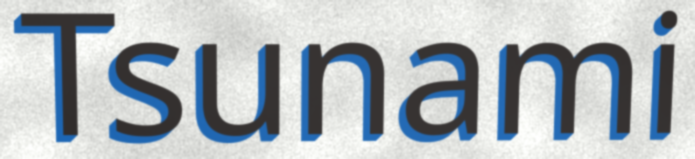
Tsunami